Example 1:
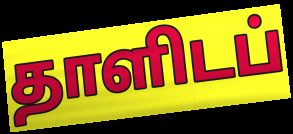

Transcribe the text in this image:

தாளிடப்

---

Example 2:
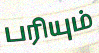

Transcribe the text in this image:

பரியும்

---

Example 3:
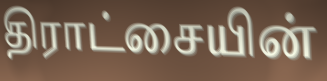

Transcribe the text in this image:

திராட்சையின்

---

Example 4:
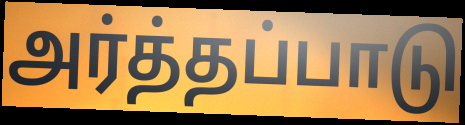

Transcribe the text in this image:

அர்த்தப்பாடு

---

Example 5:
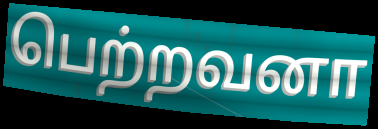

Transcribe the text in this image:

பெற்றவனா